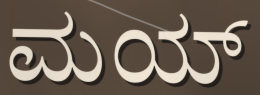
ಮಯ್